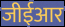
जीईआर